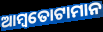
ଆମ୍ବତୋଟାମାନ